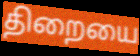
திறையை